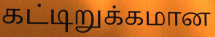
கட்டிறுக்கமான